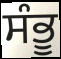
ਸੰਭੂ